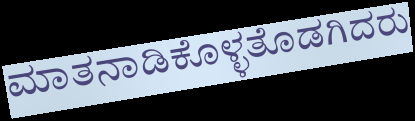
ಮಾತನಾಡಿಕೊಳ್ಳತೊಡಗಿದರು